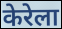
केरेला